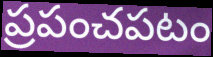
ప్రపంచపటం